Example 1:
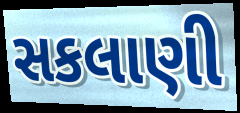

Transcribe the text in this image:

સકલાણી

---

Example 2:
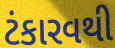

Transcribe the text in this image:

ટંકારવથી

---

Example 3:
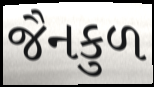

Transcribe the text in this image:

જૈનકુળ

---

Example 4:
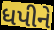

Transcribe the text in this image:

ધપીને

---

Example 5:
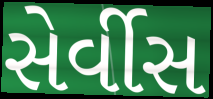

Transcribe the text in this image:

સેર્વીસ